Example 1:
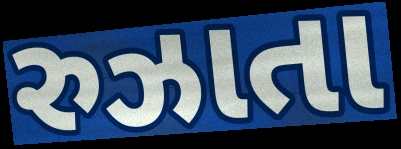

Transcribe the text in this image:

રુઝાતા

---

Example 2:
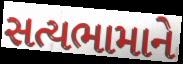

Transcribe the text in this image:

સત્યભામાને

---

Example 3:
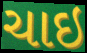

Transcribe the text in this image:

ચાઇ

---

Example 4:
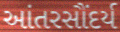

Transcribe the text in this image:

આંતરસૌંદર્ય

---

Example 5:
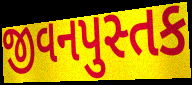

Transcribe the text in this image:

જીવનપુસ્તક